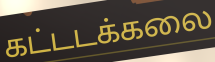
கட்டடக்கலை